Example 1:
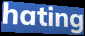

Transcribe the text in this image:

hating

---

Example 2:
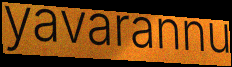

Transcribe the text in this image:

yavarannu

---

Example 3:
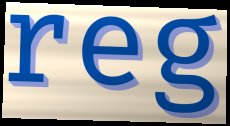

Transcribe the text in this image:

reg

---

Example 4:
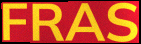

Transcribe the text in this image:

FRAS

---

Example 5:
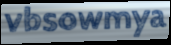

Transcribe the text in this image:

vbsowmya